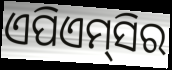
ଏପିଏମ୍‌ସିର